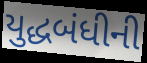
યુદ્ધબંધીની